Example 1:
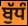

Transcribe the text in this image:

ਬੁੱਧੰ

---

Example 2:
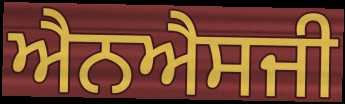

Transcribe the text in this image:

ਐਨਐਸਜੀ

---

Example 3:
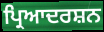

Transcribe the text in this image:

ਪ੍ਰਿਆਦਰਸ਼ਨ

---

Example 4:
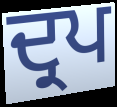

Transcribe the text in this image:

ਦ੍ਰਪ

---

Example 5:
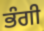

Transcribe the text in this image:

ਭੰਗੀ